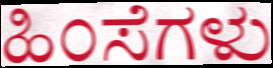
ಹಿಂಸೆಗಳು